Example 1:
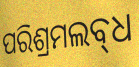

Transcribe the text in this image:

ପରିଶ୍ରମଲବ୍‍ଧ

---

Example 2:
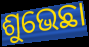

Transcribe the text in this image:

ଶୁଭେଛା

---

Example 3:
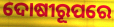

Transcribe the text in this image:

ଦୋଷୀରୂପରେ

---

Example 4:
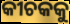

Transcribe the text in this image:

କୀଚକକୁ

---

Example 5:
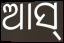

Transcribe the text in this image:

ଆସ୍